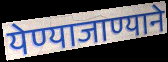
येण्याजाण्याने